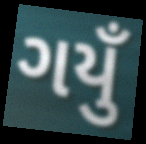
ગયુઁ